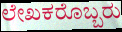
ಲೇಖಕರೊಬ್ಬರು